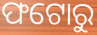
ଫଟୋରୁ